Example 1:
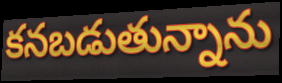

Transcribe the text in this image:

కనబడుతున్నాను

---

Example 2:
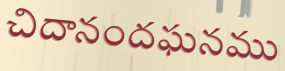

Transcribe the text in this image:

చిదానందఘనము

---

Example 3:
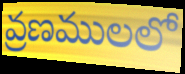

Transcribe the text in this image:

వ్రణములలో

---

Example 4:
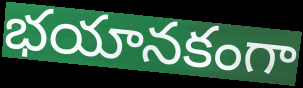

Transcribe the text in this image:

భయానకంగా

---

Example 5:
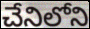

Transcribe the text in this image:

చేనిలోని